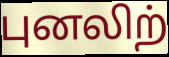
புனலிற்